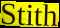
Stith